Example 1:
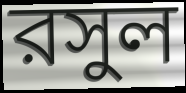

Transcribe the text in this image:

রসুল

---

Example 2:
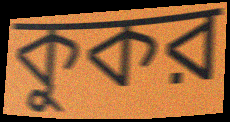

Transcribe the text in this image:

কুকর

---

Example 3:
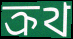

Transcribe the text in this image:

ক্রথ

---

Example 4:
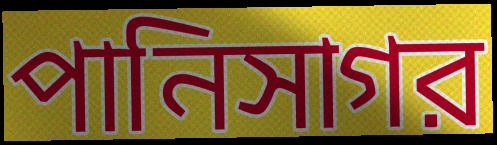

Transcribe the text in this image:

পানিসাগর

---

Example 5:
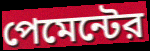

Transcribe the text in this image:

পেমেন্টের